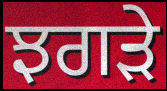
ਝਗਡ਼ੇ